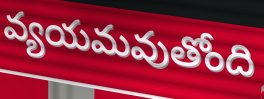
వ్యయమవుతోంది